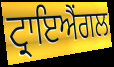
ਟ੍ਰਾਇਐਂਗਲ